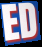
ED